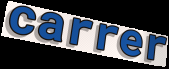
carrer